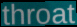
throat